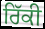
ਰਿੱਕੀ